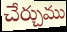
చేర్చుము